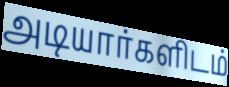
அடியார்களிடம்